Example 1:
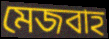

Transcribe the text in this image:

মেজবাহ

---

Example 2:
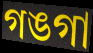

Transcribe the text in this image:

গঙগা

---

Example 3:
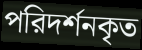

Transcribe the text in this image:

পরিদর্শনকৃত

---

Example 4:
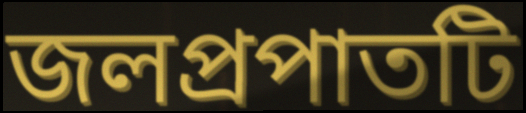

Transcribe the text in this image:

জলপ্রপাতটি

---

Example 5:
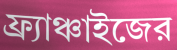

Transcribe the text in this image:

ফ্র্যাঞ্চাইজের